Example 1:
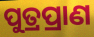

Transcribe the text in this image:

ପୁତ୍ରପ୍ରାଣ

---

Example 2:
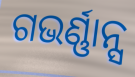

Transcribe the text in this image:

ଗଭର୍ଣ୍ଣାନ୍ସ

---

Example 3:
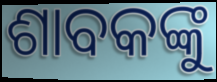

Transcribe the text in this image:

ଶାବକଙ୍କୁ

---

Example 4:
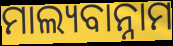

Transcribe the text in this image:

ମାଲ୍ୟବାନ୍ନାମ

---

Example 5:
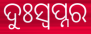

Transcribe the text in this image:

ଦୁଃସ୍ବପ୍ନର